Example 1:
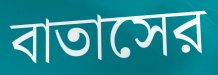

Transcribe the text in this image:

বাতাসের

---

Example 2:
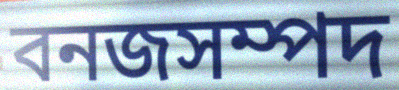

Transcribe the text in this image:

বনজসম্পদ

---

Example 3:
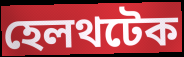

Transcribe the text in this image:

হেলথটেক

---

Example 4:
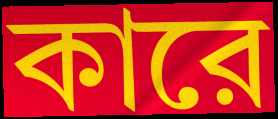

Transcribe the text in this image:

কারে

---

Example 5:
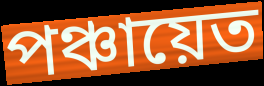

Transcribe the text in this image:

পঞ্চায়েত